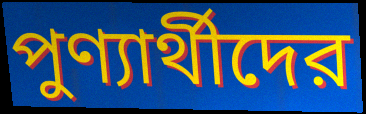
পুণ্যার্থীদের